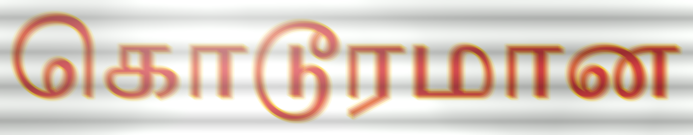
கொடூரமான